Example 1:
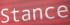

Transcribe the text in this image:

Stance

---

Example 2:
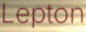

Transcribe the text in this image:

Lepton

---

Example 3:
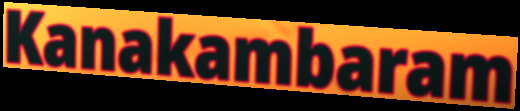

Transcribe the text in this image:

Kanakambaram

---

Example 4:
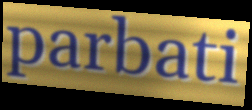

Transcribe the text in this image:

parbati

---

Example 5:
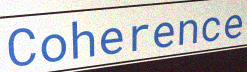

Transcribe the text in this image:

Coherence